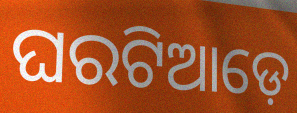
ଘରଟିଆଡ଼େ